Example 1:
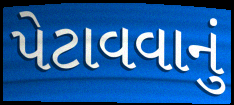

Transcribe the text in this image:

પેટાવવાનું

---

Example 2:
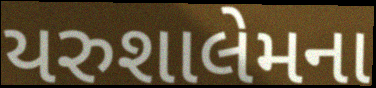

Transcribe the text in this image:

યરુશાલેમના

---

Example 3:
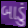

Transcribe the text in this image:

બાડું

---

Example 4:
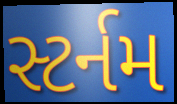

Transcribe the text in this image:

સ્ટર્નમ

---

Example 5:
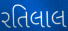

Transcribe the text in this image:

રતિલાલ